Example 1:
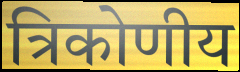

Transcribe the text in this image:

त्रिकोणीय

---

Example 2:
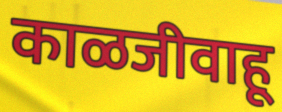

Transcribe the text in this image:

काळजीवाहू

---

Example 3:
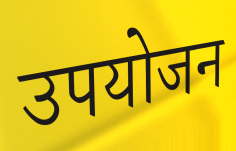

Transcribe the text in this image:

उपयोजन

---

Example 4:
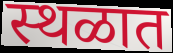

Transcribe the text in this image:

स्थळात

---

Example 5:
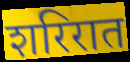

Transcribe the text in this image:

शरिरात